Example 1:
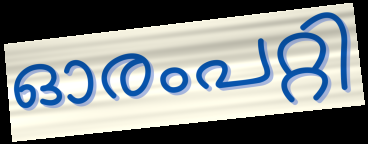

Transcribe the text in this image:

ഓരംപറ്റി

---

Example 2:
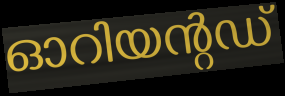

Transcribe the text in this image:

ഓറിയന്റഡ്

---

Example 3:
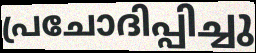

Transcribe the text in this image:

പ്രചോദിപ്പിച്ചു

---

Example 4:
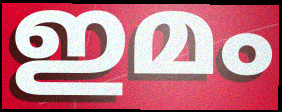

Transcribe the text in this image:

ഇമം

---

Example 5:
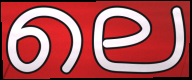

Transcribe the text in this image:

ലെ